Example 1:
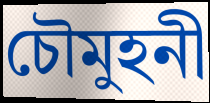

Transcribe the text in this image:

চৌমুহনী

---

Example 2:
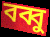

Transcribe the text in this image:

বব্বু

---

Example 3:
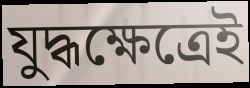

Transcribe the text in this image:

যুদ্ধক্ষেত্রেই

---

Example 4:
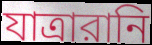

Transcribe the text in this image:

যাত্রারানি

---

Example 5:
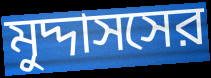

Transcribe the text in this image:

মুদ্দাসসের